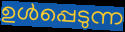
ഉൾപ്പെടുന്ന